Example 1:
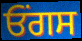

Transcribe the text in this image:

ਓਂਗਸ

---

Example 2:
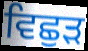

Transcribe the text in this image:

ਵਿਛੁੜ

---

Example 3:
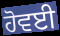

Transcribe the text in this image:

ਹੋਵਈ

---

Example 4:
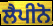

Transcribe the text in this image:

ਲੈਪੀਨੋ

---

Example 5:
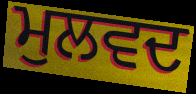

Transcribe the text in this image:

ਮੁਲਵਦ